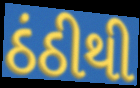
ઠંઠીથી